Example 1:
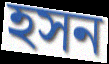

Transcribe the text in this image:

হসন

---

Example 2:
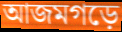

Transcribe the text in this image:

আজমগড়ে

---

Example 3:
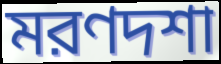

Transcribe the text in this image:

মরণদশা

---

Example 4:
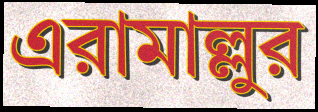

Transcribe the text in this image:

এরামাল্লুর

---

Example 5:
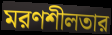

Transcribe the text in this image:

মরণশীলতার